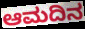
ಆಮದಿನ